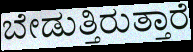
ಬೇಡುತ್ತಿರುತ್ತಾರೆ